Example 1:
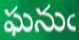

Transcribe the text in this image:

ఘనుఁ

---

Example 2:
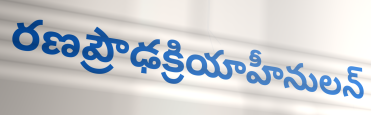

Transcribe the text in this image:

రణప్రౌఢక్రియాహీనులన్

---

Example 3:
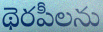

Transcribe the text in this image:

థెరపీలను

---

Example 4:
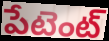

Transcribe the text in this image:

పేటెంట్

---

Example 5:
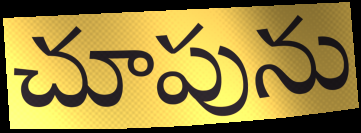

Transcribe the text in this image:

చూపును